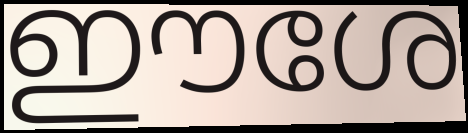
ഈശേ